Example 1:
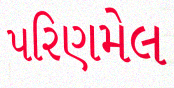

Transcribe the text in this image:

પરિણમેલ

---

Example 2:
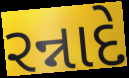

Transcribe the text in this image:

રન્નાદે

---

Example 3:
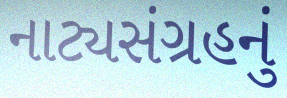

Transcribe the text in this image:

નાટ્યસંગ્રહનું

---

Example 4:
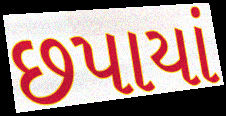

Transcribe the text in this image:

છપાયાં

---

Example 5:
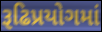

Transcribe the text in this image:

રૂઢિપ્રયોગમાં